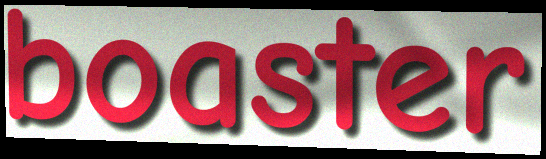
boaster